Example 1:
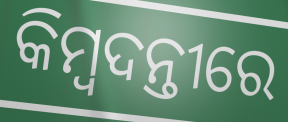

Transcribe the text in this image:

କିମ୍ବଦନ୍ତୀରେ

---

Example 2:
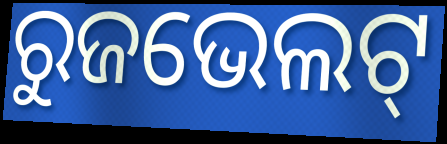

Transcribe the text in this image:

ରୁଜଭେଲଟ୍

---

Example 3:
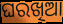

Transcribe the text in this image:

ଘରଖିଆ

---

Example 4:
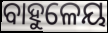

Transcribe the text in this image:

ବାହୁଳେୟ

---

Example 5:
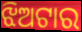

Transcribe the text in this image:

ଝିଅଟାର